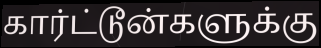
கார்ட்டூன்களுக்கு